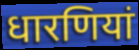
धारणियां